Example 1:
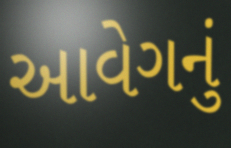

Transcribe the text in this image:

આવેગનું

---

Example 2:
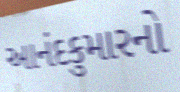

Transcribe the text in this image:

આનંદકુમારનો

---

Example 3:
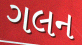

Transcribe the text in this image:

ગલન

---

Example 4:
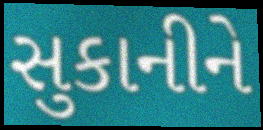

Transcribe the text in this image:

સુકાનીને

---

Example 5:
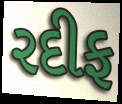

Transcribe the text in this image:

રદીફ